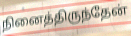
நினைத்திருந்தேன்